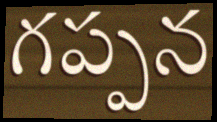
గప్పన